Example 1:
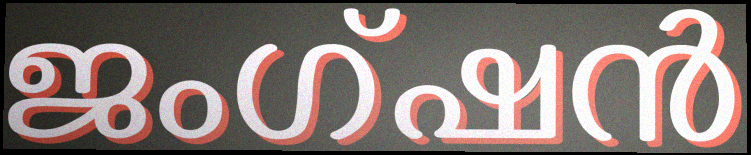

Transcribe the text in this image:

ജംഗ്ഷൻ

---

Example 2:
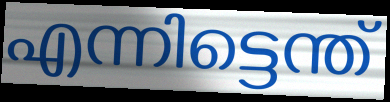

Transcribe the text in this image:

എന്നിട്ടെന്ത്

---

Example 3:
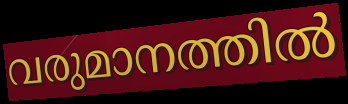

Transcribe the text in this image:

വരുമാനത്തിൽ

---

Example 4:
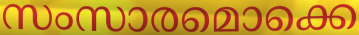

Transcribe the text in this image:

സംസാരമൊക്കെ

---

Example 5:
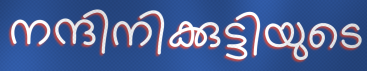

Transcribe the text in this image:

നന്ദിനിക്കുട്ടിയുടെ